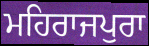
ਮਹਿਰਾਜਪੁਰਾ